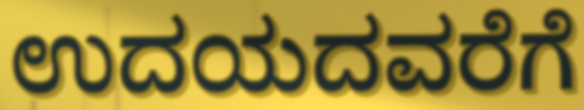
ಉದಯದವರೆಗೆ